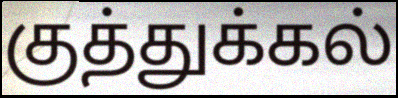
குத்துக்கல்